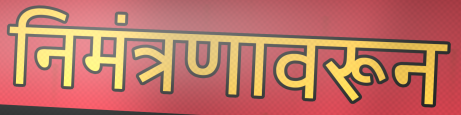
निमंत्रणावरून